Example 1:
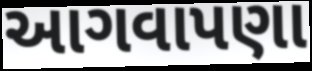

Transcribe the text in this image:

આગવાપણા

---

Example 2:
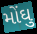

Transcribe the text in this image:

મોંઘુ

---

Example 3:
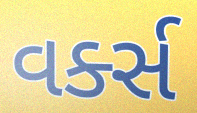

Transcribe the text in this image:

વર્ક્સ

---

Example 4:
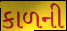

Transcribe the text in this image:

કાળની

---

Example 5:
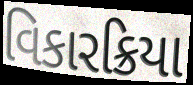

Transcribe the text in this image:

વિકારક્રિયા